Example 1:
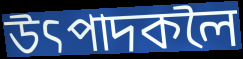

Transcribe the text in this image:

উৎপাদকলৈ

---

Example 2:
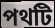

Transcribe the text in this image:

পথটি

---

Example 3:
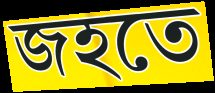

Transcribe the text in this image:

জহতে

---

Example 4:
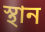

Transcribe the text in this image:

স্থান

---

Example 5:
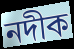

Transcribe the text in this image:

নদীক